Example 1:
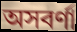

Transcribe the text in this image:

অসবর্ণা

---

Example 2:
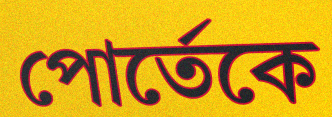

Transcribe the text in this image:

পোর্তেকে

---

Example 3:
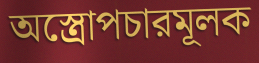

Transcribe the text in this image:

অস্ত্রোপচারমূলক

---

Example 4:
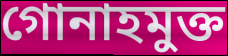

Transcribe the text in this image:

গোনাহমুক্ত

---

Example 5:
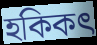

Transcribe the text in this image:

হকিকৎ